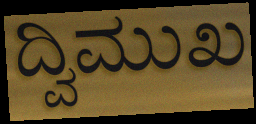
ದ್ವಿಮುಖ